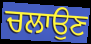
ਚਲਾਉਣ